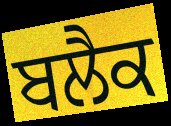
ਬਲੈਕ